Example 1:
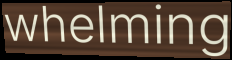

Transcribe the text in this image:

whelming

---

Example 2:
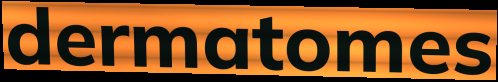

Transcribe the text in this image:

dermatomes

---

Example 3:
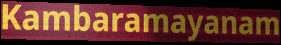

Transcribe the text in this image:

Kambaramayanam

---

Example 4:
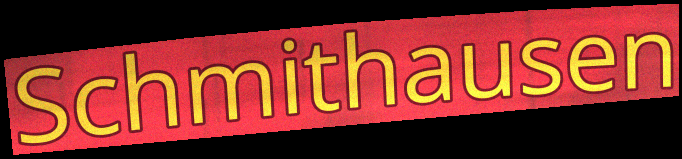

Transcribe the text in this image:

Schmithausen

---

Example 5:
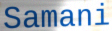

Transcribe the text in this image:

Samani